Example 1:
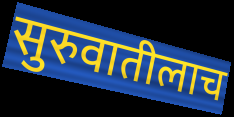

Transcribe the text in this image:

सुरुवातीलाच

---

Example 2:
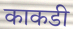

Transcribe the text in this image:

काकडी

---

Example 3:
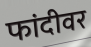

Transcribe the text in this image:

फांदीवर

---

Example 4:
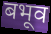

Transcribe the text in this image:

बभूव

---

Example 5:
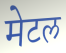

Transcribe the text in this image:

मेटल